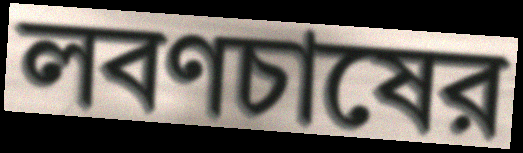
লবণচাষের